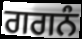
ਗਗਨੰ